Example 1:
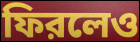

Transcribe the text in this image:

ফিরলেও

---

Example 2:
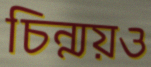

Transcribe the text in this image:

চিন্ময়ও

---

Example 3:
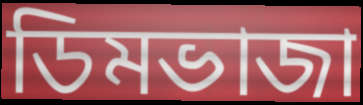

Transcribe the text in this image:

ডিমভাজা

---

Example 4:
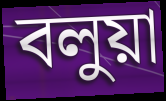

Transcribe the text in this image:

বলুয়া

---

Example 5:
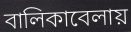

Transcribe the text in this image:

বালিকাবেলায়